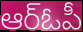
ఆర్ఓపీ